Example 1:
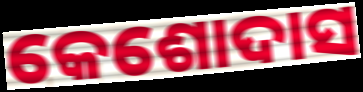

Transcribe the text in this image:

କେଶୋଦାସ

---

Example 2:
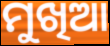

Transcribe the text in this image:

ମୁଖିଆ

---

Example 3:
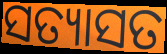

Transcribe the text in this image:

ସତ୍ୟାସତ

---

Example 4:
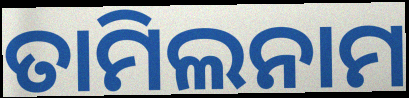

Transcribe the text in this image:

ତାମିଲନାମ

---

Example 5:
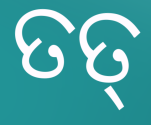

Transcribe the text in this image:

ତତ୍